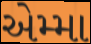
એમ્મા